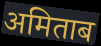
अमिताब